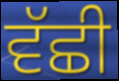
ਵੱਛੀ